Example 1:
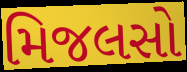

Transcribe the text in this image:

મિજલસો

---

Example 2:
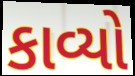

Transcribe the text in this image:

કાવ્યો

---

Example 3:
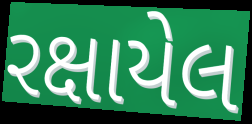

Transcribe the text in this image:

રક્ષાયેલ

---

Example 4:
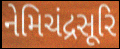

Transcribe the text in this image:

નેમિચંદ્રસૂરિ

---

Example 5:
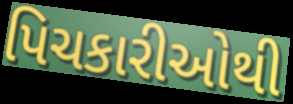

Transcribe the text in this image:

પિચકારીઓથી